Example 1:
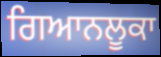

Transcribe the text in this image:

ਗਿਆਨਲੂਕਾ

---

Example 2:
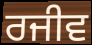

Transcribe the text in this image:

ਰਜੀਵ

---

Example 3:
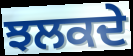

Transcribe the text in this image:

ਝਲਕਦੇ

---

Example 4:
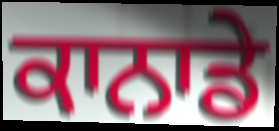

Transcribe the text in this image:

ਕਾਨਾਡੇ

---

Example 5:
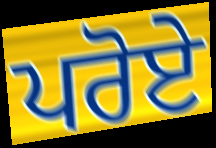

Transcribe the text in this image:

ਪਰੋਏ